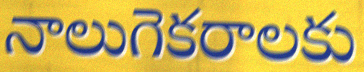
నాలుగెకరాలకు